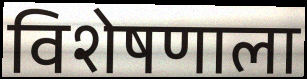
विशेषणाला